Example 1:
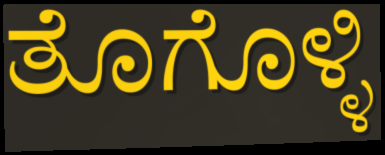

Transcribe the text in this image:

ತೊಗೊಳ್ಳಿ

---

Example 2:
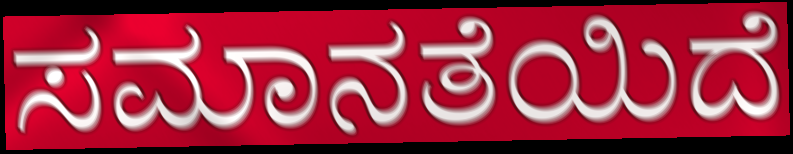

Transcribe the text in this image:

ಸಮಾನತೆಯಿದೆ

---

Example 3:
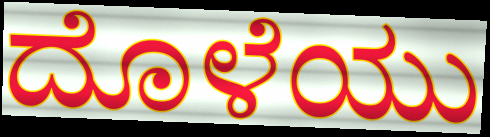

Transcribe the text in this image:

ದೊಳೆಯು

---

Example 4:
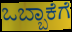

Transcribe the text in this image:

ಒಬ್ಬಾಕೆಗೆ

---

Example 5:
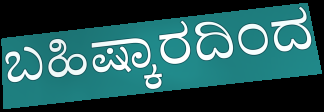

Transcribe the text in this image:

ಬಹಿಷ್ಕಾರದಿಂದ